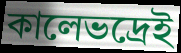
কালেভদ্রেই